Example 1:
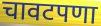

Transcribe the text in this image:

चावटपणा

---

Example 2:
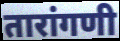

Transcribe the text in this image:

तारांगणी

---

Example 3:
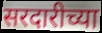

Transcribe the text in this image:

सरदारीच्या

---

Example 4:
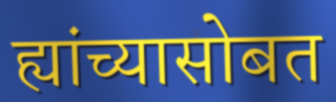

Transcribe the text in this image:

ह्यांच्यासोबत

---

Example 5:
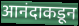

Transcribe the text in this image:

आनंदाकडून